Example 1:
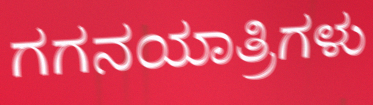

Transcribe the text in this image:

ಗಗನಯಾತ್ರಿಗಳು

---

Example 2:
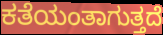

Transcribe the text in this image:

ಕತೆಯಂತಾಗುತ್ತದೆ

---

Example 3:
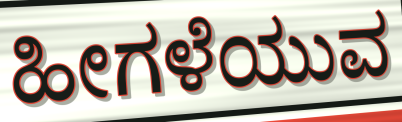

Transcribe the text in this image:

ಹೀಗಳೆಯುವ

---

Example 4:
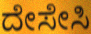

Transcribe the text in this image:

ದೇಸೇಸಿ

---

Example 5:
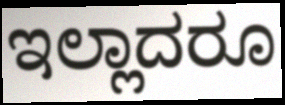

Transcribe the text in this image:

ಇಲ್ಲಾದರೂ